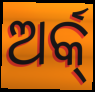
ଅର୍କ୍